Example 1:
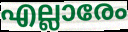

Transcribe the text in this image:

എല്ലാരേം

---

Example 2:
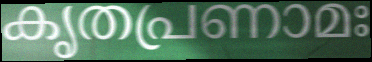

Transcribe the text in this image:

കൃതപ്രണാമഃ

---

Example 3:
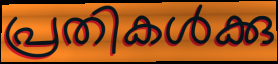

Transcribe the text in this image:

പ്രതികൾക്കു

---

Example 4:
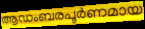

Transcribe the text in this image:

ആഡംബരപൂർണമായ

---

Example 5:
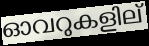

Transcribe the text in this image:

ഓവറുകളില്